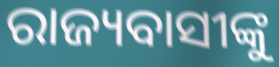
ରାଜ୍ୟବାସୀଙ୍କୁ